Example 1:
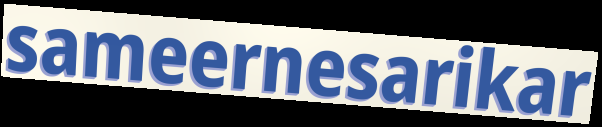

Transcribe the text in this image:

sameernesarikar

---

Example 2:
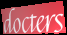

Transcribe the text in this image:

docters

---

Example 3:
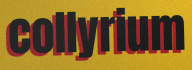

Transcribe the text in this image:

collyrium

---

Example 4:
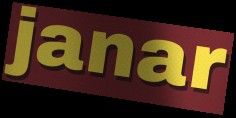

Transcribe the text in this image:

janar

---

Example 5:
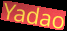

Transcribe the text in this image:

Yadao